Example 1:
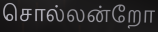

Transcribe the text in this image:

சொல்லன்றோ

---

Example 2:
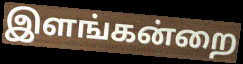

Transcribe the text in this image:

இளங்கன்றை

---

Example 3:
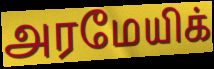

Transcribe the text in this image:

அரமேயிக்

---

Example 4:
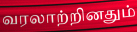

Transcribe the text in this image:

வரலாற்றினதும்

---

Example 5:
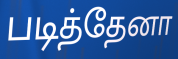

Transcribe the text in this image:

படித்தேனா